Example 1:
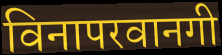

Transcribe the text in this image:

विनापरवानगी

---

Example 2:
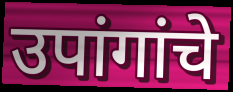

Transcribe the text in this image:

उपांगांचे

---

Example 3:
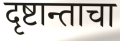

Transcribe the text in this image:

दृष्टान्ताचा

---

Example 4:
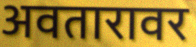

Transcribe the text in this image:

अवतारावर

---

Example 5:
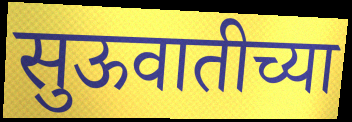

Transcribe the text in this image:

सुऊवातीच्या